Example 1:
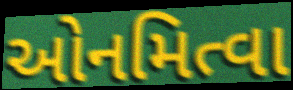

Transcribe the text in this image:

ઓનમિત્વા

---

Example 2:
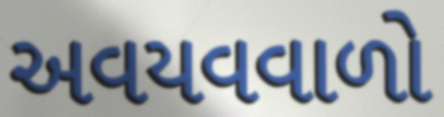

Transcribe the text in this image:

અવયવવાળો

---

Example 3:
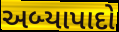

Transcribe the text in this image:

અબ્યાપાદો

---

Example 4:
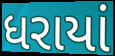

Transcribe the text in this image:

ધરાયાં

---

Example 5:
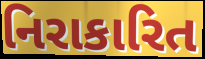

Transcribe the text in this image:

નિરાકારિત